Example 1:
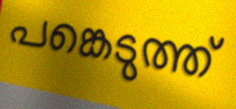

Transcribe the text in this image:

പങ്കെടുത്ത്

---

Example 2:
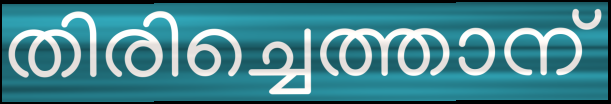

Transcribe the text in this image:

തിരിച്ചെത്താന്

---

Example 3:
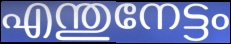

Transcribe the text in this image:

എന്തുനേട്ടം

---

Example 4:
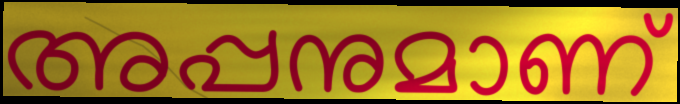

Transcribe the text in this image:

അപ്പനുമാണ്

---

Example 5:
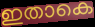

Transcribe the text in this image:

ഇതാകെ